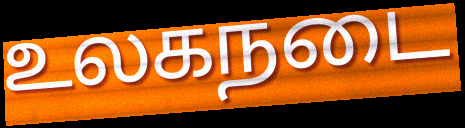
உலகநடை